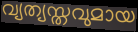
വ്യത്യസ്തവുമായ